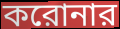
করোনার